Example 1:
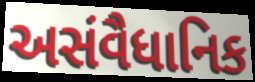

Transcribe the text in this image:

અસંવૈધાનિક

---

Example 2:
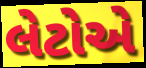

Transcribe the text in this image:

લેટોએ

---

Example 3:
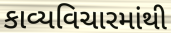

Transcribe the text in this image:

કાવ્યવિચારમાંથી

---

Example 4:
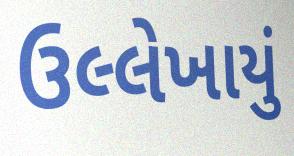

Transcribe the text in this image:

ઉલ્લેખાયું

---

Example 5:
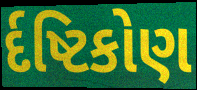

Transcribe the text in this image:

ર્દષ્ટિકોણ